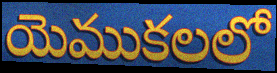
యెముకలలో